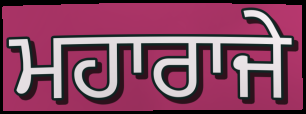
ਮਹਾਰਾਜੇ